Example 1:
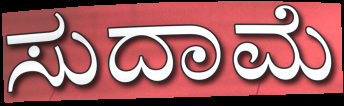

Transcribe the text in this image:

ಸುದಾಮೆ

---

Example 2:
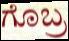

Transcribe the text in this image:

ಗೊಬ್ರ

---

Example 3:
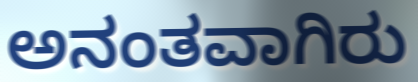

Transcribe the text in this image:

ಅನಂತವಾಗಿರು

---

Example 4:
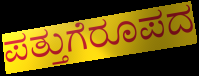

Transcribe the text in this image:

ಪತ್ತುಗೆರೂಪದ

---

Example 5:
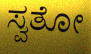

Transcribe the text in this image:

ಸ್ವತೋ